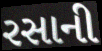
રસાની